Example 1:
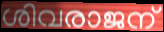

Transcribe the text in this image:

ശിവരാജന്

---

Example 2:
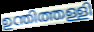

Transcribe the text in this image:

ഉന്തിത്തള്ളി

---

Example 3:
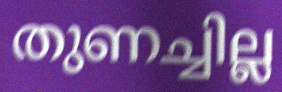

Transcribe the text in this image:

തുണച്ചില്ല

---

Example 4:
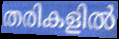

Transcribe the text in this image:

തരികളിൽ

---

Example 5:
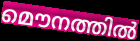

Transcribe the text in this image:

മൌനത്തിൽ